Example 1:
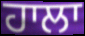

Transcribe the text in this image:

ਹਾਲਾ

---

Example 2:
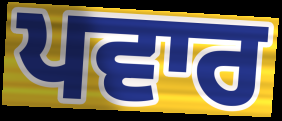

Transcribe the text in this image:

ਪਵਾਰ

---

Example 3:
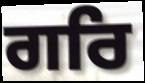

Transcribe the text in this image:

ਗਰਿ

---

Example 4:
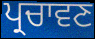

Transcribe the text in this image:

ਪ੍ਰਚਾਵਣ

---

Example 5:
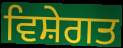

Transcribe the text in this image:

ਵਿਸ਼ੇਗਤ